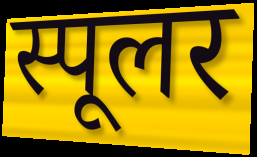
स्पूलर